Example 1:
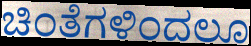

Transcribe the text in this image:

ಚಿಂತೆಗಳಿಂದಲೂ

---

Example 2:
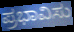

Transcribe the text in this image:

ಪ್ರಭಾವಿಸು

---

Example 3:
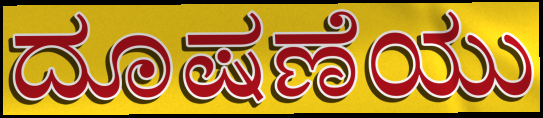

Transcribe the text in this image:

ದೂಷಣೆಯು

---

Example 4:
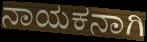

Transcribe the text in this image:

ನಾಯಕನಾಗಿ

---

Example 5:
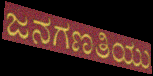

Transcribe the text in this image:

ಜನಗಣತಿಯು